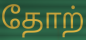
தோற்